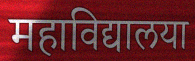
महाविद्यालया